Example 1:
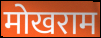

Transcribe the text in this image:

मोखराम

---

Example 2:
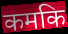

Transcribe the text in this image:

कमकि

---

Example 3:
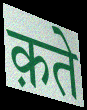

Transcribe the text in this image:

क़ते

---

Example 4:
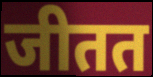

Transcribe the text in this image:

जीतत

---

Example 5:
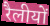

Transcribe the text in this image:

रैलीयों